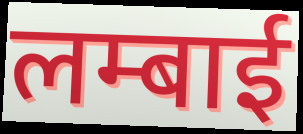
लम्बाई